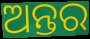
ଅନ୍ତର